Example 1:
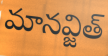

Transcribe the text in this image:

మానవ్జిత్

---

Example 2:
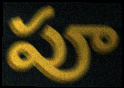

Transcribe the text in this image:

పూ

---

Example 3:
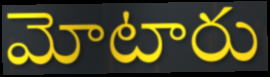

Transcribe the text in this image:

మోటారు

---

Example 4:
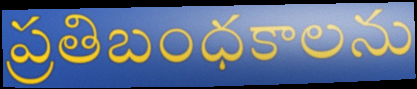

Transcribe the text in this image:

ప్రతిబంధకాలను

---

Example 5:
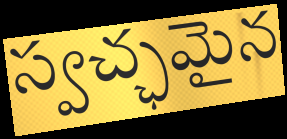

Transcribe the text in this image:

స్వచ్ఛమైన